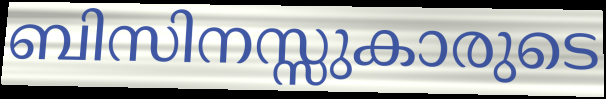
ബിസിനസ്സുകാരുടെ